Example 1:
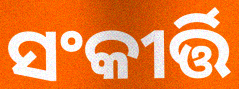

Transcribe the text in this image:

ସଂକୀର୍ତ୍ତି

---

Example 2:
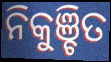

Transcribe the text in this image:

ନିକୁଞ୍ଚିତ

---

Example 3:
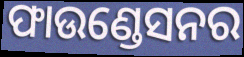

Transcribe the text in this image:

ଫାଉଣ୍ଡେସନର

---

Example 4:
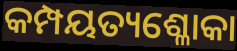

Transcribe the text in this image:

କମ୍ପୟତ୍ୟଶ୍ଳୋକା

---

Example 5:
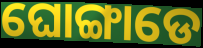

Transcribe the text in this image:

ଘୋଙ୍ଗାଡେ